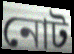
নোট